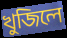
খুজিলে